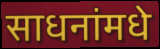
साधनांमधे